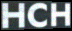
HCH